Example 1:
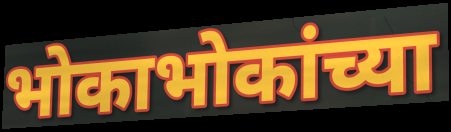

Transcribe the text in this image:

भोकाभोकांच्या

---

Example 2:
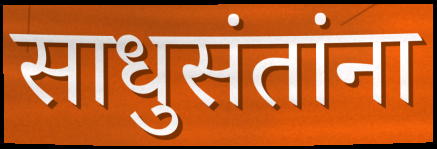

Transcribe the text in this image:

साधुसंतांना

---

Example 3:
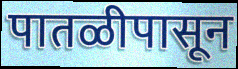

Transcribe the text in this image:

पातळीपासून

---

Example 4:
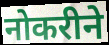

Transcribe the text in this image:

नोकरीने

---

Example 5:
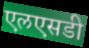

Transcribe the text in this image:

एलएसडी